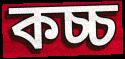
কচ্চ